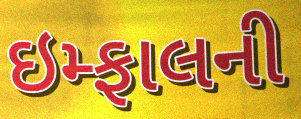
ઇમ્ફાલની